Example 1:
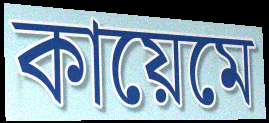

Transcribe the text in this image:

কায়েমে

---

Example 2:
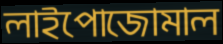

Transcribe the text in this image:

লাইপোজোমাল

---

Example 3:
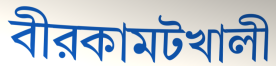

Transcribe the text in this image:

বীরকামটখালী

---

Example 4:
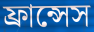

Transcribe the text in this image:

ফ্রান্সেস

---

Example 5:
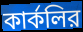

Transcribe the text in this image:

কার্কলির